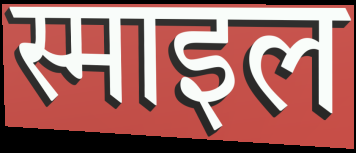
स्माइल